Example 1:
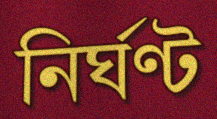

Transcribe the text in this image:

নির্ঘণ্ট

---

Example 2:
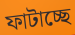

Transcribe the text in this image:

ফাটাচ্ছে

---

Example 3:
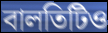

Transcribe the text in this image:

বালতিটিও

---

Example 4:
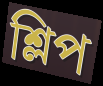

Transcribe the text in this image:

শ্লিপ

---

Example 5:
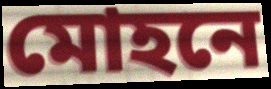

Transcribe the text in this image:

মোহনে